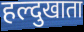
हल्दुखाता